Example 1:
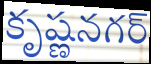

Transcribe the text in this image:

కృష్ణనగర్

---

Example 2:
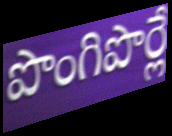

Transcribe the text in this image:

పొంగిపొర్లే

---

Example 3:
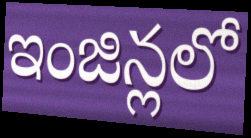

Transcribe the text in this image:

ఇంజిన్లలో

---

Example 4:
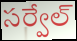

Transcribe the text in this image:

సర్వేల్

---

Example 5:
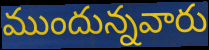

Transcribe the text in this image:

ముందున్నవారు